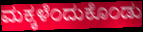
ಮಕ್ಕಳೆಂದುಕೊಂಡು